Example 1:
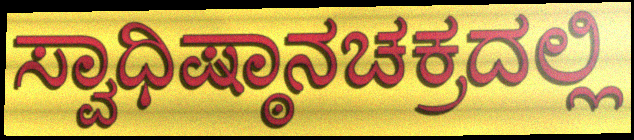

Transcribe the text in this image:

ಸ್ವಾಧಿಷ್ಠಾನಚಕ್ರದಲ್ಲಿ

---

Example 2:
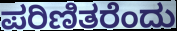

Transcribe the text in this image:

ಪರಿಣಿತರೆಂದು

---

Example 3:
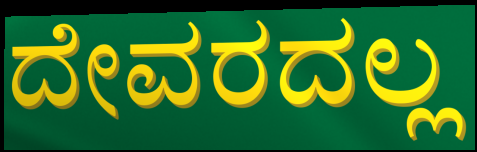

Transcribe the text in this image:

ದೇವರದಲ್ಲ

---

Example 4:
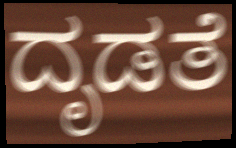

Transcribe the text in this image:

ದೃಡತೆ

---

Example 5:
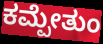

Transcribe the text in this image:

ಕಮ್ಪೇತುಂ